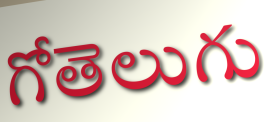
గోతెలుగు